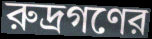
রুদ্রগণের